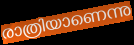
രാത്രിയാണെന്നു